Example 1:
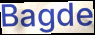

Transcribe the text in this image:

Bagde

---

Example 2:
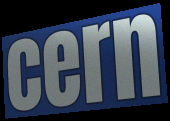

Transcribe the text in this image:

cern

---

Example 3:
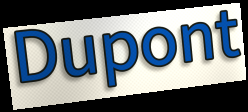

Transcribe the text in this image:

Dupont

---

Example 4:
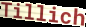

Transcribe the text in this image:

Tillich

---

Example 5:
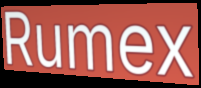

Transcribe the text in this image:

Rumex